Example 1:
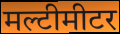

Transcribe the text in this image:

मल्टीमीटर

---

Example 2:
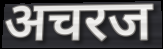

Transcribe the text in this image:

अचरज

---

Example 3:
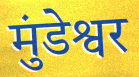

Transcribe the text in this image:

मुंडेश्वर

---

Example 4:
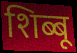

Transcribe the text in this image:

शिब्बू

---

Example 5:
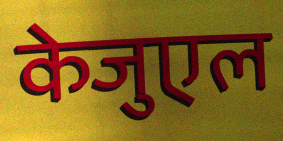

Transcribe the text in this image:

केजुएल